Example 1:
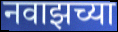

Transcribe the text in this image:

नवाझच्या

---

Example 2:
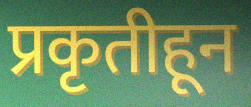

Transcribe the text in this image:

प्रकृतीहून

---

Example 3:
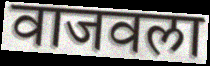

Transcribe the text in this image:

वाजवला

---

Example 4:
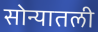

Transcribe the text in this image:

सोन्यातली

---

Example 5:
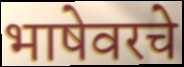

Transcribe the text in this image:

भाषेवरचे